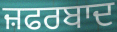
ਜ਼ਫਰਬਾਦ